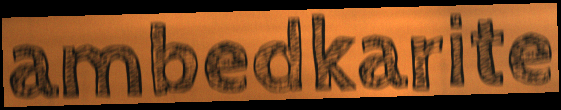
ambedkarite